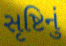
સૃષ્ટિનું